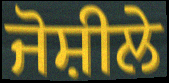
ਜੋਸ਼ੀਲੇ